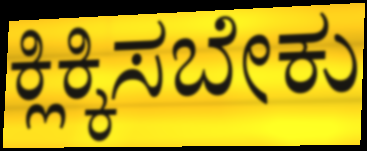
ಕ್ಲಿಕ್ಕಿಸಬೇಕು